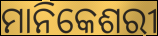
ମାନିକେଶରୀ